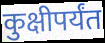
कुक्षीपर्यंत